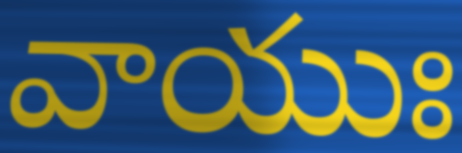
వాయుః